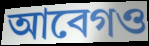
আবেগও